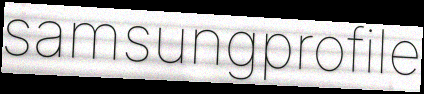
samsungprofile